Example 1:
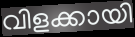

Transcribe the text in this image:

വിളക്കായി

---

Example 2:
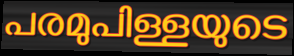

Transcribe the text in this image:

പരമുപിള്ളയുടെ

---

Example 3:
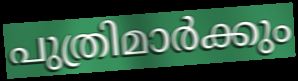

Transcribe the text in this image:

പുത്രിമാർക്കും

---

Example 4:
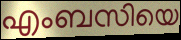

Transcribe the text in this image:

എംബസിയെ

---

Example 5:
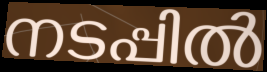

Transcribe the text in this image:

നടപ്പിൽ